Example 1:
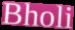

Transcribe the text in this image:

Bholi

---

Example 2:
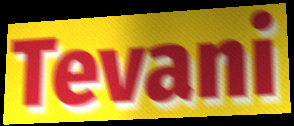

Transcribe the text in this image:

Tevani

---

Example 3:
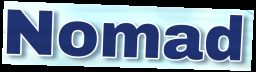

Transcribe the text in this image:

Nomad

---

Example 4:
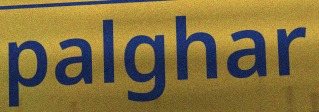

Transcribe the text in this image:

palghar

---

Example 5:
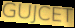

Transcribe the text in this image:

GUJCET